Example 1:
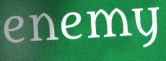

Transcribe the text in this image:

enemy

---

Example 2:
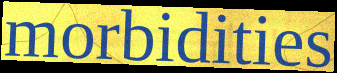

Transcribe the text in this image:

morbidities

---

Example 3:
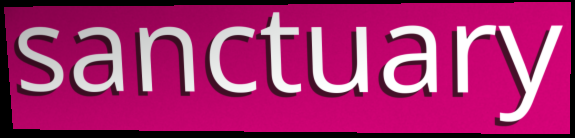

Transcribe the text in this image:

sanctuary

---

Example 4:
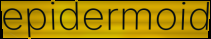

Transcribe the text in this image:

epidermoid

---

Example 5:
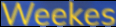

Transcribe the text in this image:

Weekes